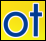
ot